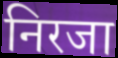
निरजा